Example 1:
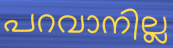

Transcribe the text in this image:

പറവാനില്ല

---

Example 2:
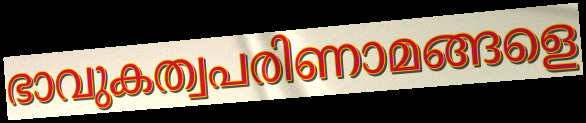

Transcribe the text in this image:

ഭാവുകത്വപരിണാമങ്ങളെ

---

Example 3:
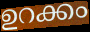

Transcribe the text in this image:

ഉറക്കം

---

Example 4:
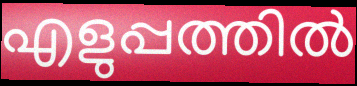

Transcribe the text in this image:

എളുപ്പത്തിൽ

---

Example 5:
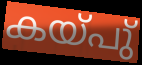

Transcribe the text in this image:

കയ്പു്